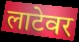
लाटेवर